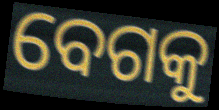
ବେଗକୁ